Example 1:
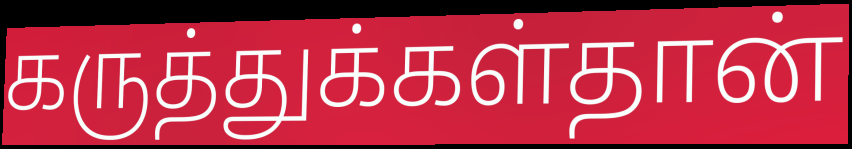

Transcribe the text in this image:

கருத்துக்கள்தான்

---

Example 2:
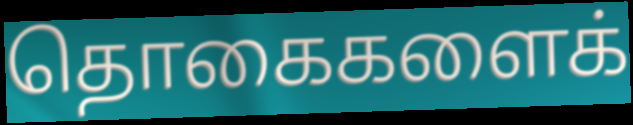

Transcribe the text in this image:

தொகைகளைக்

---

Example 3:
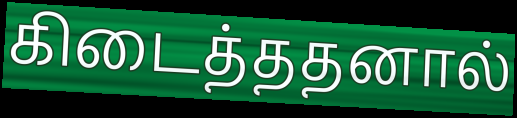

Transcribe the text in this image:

கிடைத்ததனால்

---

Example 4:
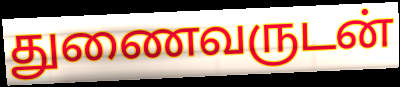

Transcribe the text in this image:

துணைவருடன்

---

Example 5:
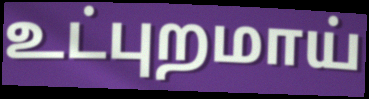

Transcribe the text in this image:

உட்புறமாய்